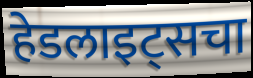
हेडलाइट्सचा